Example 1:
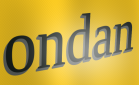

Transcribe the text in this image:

ondan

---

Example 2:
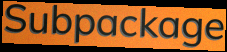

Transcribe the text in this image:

Subpackage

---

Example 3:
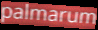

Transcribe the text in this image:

palmarum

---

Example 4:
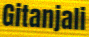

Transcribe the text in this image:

Gitanjali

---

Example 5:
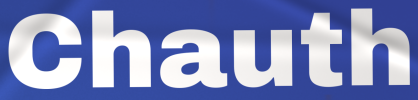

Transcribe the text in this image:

Chauth